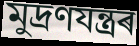
মুদ্ৰণযন্ত্ৰৰ